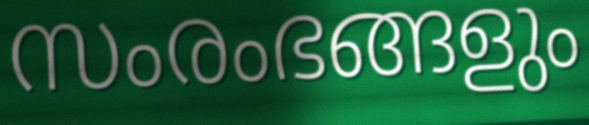
സംരംഭങ്ങളും